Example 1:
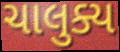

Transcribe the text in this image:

ચાલુક્ય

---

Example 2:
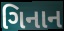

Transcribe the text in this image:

ગિનાન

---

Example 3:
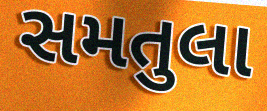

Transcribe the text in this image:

સમતુલા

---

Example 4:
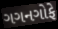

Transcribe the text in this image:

ગગનગોફે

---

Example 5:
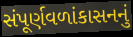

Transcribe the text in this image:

સંપૂર્ણવળાંકાસનનું